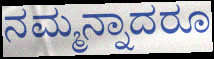
ನಮ್ಮನ್ನಾದರೂ